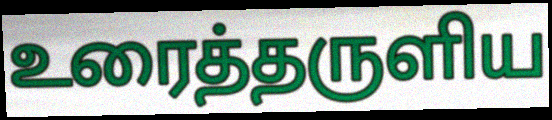
உரைத்தருளிய